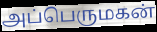
அப்பெருமகன்